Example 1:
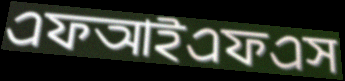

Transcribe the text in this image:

এফআইএফএস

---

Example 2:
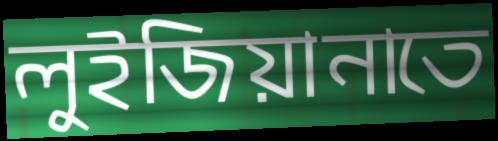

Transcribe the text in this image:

লুইজিয়ানাতে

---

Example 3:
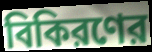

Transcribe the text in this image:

বিকিরণের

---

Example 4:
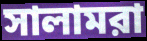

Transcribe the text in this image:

সালামরা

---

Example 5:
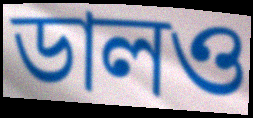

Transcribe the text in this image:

ডালও